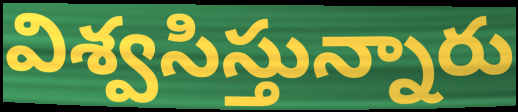
విశ్వసిస్తున్నారు